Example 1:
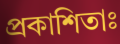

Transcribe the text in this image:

প্রকাশিতাঃ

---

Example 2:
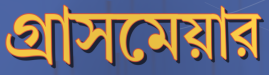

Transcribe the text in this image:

গ্রাসমেয়ার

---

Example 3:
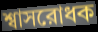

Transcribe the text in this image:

শ্বাসরোধক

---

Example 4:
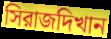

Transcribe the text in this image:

সিরাজদিখান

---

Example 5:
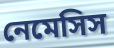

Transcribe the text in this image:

নেমেসিস